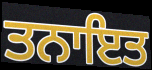
ਤਨਾਇਤ